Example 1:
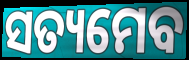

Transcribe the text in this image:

ସତ୍ୟମେବ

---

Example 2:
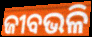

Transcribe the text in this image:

ଜୀବଭଳି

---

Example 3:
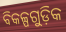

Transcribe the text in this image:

ବିକଳ୍ପଗୁଡ଼ିକ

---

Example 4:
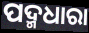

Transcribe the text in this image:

ପଦ୍ମଧାରା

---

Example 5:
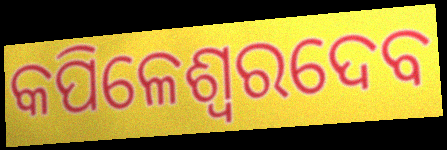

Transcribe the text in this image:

କପିଳେଶ୍ୱରଦେବ